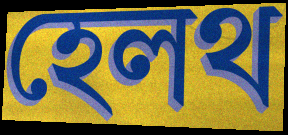
হেলথ